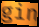
gin